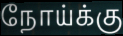
நோய்க்கு